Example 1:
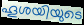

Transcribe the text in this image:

ഹൂശയിയുടെ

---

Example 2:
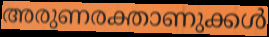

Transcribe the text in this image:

അരുണരക്താണുക്കൾ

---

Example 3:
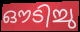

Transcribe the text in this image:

ഔടിച്ചു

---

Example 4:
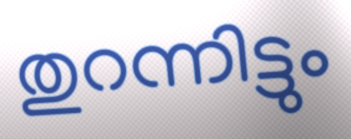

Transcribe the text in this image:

തുറന്നിട്ടും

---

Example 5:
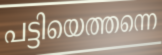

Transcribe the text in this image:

പട്ടിയെത്തന്നെ